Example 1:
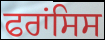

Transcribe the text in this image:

ਫਰਾਂਸਿਸ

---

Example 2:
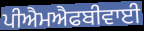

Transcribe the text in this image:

ਪੀਐਮਐਫਬੀਵਾਈ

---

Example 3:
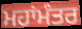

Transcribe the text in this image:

ਮਹਾਂਮੰਤਰ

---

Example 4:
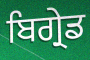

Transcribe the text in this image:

ਬਿਗ੍ਰੇਡ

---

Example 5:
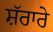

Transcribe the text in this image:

ਸ਼ੱਰਾਰੇ